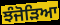
ਝੰਜੋੜਿਆ